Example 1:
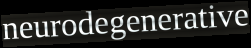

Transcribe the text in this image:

neurodegenerative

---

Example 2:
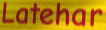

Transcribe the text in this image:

Latehar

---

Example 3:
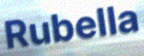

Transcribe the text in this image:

Rubella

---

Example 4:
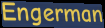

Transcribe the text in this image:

Engerman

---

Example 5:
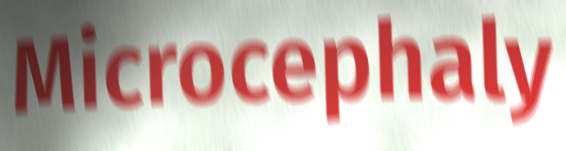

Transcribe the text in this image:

Microcephaly